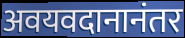
अवयवदानानंतर